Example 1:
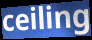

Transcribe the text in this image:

ceiling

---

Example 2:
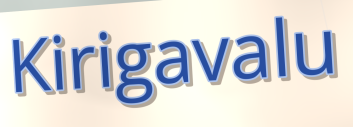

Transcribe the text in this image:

Kirigavalu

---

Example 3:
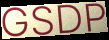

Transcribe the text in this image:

GSDP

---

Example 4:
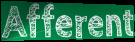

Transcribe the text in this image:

Afferent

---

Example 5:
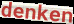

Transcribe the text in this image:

denken